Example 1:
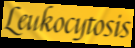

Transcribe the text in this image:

Leukocytosis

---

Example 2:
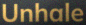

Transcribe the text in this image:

Unhale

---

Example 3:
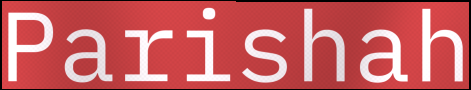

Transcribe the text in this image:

Parishah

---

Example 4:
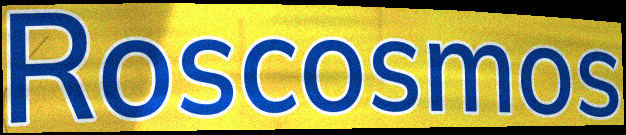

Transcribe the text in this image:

Roscosmos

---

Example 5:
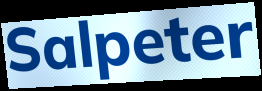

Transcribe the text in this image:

Salpeter